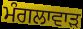
ਮੰਗਲਾਵਾੜ